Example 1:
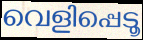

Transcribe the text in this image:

വെളിപ്പെടൂ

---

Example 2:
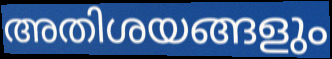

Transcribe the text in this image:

അതിശയങ്ങളും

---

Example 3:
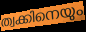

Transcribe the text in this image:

ത്വക്കിനെയും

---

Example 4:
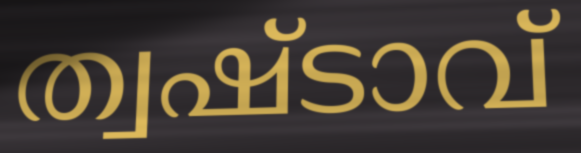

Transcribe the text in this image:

ത്വഷ്ടാവ്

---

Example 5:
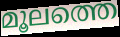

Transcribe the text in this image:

മൂലത്തെ